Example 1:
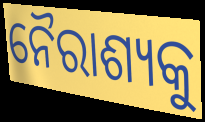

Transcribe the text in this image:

ନୈରାଶ୍ୟକୁ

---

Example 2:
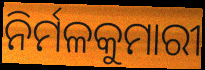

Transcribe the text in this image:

ନିର୍ମଳକୁମାରୀ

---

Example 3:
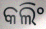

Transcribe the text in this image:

କଲିଂ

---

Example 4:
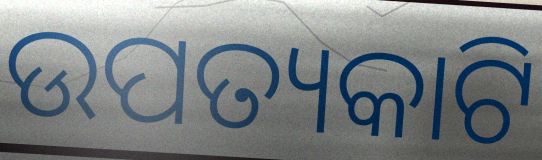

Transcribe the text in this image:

ଉପତ୍ୟକାଟି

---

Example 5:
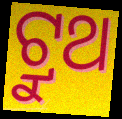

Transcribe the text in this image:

ଟ୍ରୁଥ